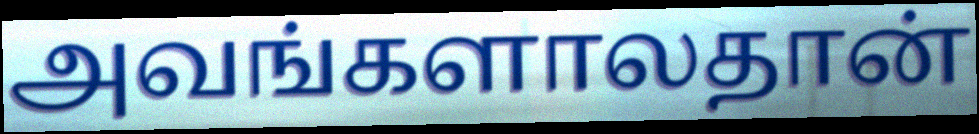
அவங்களாலதான்